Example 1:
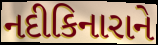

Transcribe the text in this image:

નદીકિનારાને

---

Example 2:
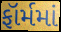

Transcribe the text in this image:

ફૉર્મમાં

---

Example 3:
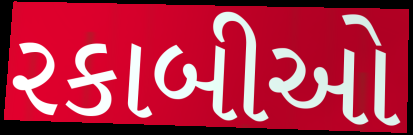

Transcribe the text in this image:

રકાબીઓ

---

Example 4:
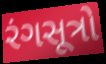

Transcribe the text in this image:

રંગસૂત્રો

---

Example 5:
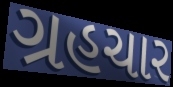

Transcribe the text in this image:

ગ્રહચાર